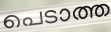
പെടാത്ത